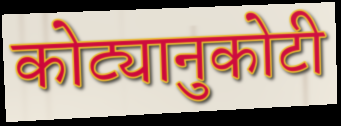
कोट्यानुकोटी